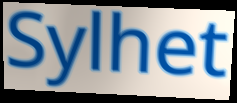
Sylhet